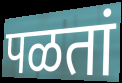
पळतां